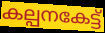
കല്പനകേട്ട്